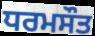
ਧਰਮਸੌਤ